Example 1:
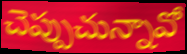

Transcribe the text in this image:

చెప్పుచున్నావో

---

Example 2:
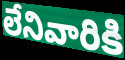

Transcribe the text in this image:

లేనివారికి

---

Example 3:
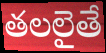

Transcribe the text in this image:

తలలైతే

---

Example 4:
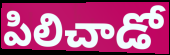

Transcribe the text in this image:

పిలిచాడో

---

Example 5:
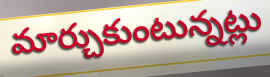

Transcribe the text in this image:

మార్చుకుంటున్నట్లు